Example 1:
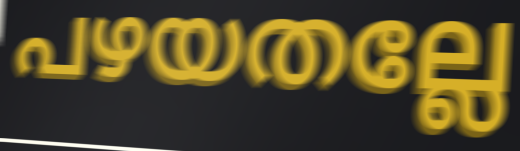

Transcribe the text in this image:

പഴയതല്ലേ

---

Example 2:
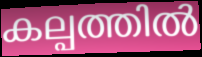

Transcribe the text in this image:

കല്പത്തിൽ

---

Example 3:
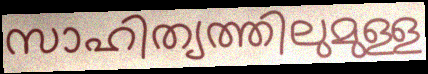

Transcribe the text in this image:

സാഹിത്യത്തിലുമുള്ള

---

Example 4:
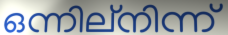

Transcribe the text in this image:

ഒന്നില്നിന്ന്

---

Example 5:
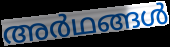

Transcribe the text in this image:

അർഥങ്ങൾ